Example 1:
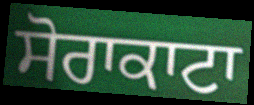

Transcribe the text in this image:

ਸੋਰਾਕਾਟਾ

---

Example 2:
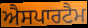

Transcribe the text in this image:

ਐਸਪਾਰਟੈਮ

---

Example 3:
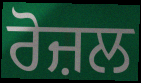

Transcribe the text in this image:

ਰੋਜ਼ਲ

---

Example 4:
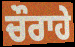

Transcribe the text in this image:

ਚੌਰਾਹੇ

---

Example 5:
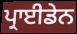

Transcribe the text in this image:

ਪ੍ਰਾਈਡੇਨ